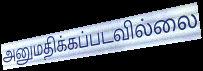
அனுமதிக்கப்படவில்லை